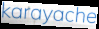
karayache